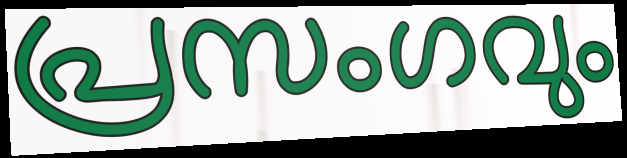
പ്രസംഗവും